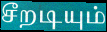
சீறடியும்